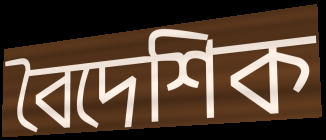
বৈদেশিক